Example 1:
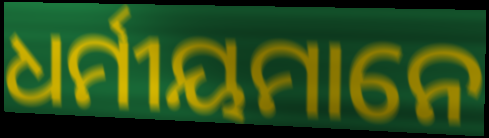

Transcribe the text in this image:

ଧର୍ମୀୟମାନେ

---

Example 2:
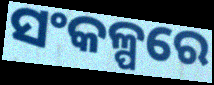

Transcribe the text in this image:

ସଂକଳ୍ପରେ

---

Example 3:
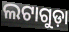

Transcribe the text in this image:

ଲଟାଗୁଡ଼ା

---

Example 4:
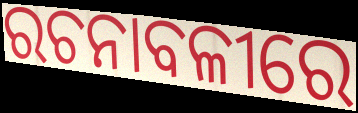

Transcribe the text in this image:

ରଚନାବଳୀରେ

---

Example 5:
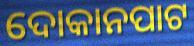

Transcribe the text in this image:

ଦୋକାନପାଟ